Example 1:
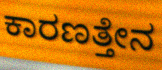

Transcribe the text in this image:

ಕಾರಣತ್ತೇನ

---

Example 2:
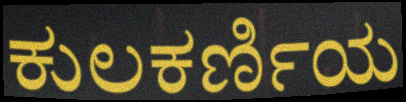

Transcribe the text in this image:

ಕುಲಕರ್ಣಿಯ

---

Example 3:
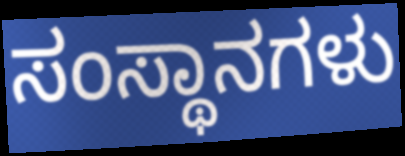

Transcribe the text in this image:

ಸಂಸ್ಥಾನಗಳು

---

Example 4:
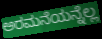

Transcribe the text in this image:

ಅರಮನೆಯನ್ನೆಲ್ಲ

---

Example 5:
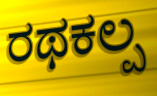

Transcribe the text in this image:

ರಥಕಲ್ಪ